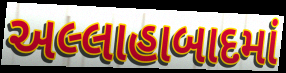
અલ્લાહાબાદમાં